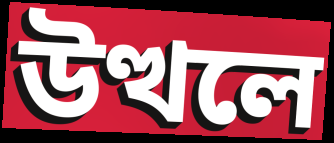
উত্থলে